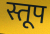
स्तूप